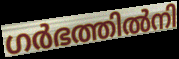
ഗർഭത്തിൽനി